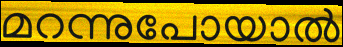
മറന്നുപോയാൽ